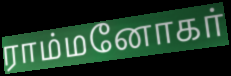
ராம்மனோகர்